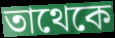
তাথেকে